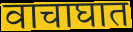
वाचाघात